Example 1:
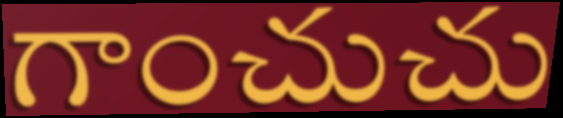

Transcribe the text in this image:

గాంచుచు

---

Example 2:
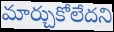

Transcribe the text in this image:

మార్చుకోలేదని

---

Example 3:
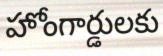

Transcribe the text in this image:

హోంగార్డులకు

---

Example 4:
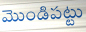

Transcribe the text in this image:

మొండిపట్టు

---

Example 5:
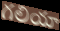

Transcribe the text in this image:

గలియా